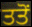
ਤਤੋਂ